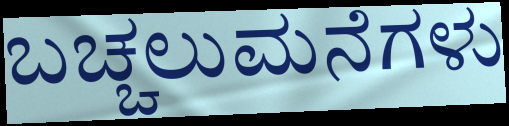
ಬಚ್ಚಲುಮನೆಗಳು